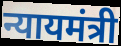
न्यायमंत्री